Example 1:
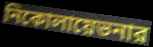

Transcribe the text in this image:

নিকোলায়েভনার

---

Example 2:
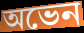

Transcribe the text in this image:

অভেন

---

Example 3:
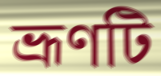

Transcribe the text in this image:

ভ্রূণটি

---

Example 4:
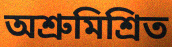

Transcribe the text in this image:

অশ্রুমিশ্রিত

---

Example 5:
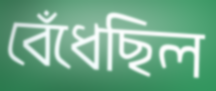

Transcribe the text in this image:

বেঁধেছিল